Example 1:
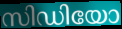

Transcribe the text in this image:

സിഡിയോ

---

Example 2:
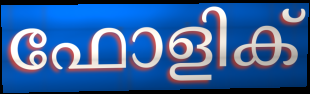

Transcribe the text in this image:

ഫോളിക്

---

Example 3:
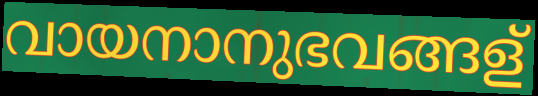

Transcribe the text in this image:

വായനാനുഭവങ്ങള്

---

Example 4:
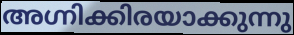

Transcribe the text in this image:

അഗ്നിക്കിരയാക്കുന്നു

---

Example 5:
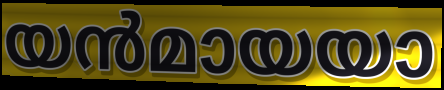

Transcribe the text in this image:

യൻമായയാ